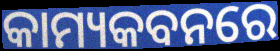
କାମ୍ୟକବନରେ